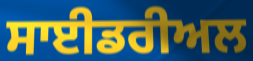
ਸਾਈਡਰੀਅਲ